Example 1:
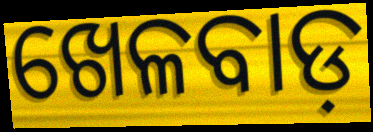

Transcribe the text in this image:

ଖେଳବାଡ଼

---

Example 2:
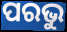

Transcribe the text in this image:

ପରଭୁ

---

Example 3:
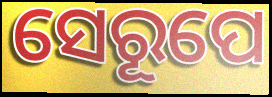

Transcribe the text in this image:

ସେରୂପେ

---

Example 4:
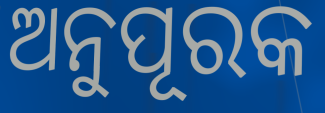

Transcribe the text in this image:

ଅନୁପୂରକ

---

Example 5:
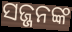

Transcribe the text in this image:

ସଜ୍ଜନଙ୍କ